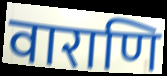
वाराणि